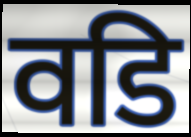
वडि